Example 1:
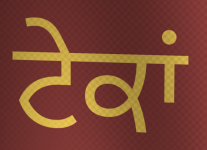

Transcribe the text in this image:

ਟੇਕਾਂ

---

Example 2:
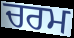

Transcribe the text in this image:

ਚਰਮ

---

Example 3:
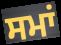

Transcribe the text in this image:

ਸਮਾਂ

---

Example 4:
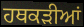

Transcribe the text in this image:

ਹਥਕੜੀਆਂ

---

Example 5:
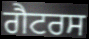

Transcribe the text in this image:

ਗੈਟਰਸ